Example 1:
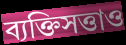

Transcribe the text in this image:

ব্যক্তিসত্তাও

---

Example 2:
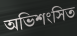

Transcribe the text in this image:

অভিশংসিত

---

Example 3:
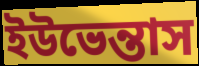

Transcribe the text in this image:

ইউভেন্তাস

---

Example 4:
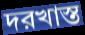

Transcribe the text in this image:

দরখাস্ত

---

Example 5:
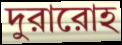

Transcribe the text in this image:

দুরারোহ